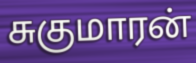
சுகுமாரன்